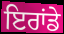
ਇਰਾਂਡੇ